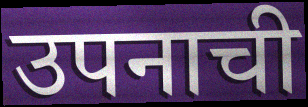
उपनाची